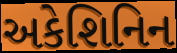
અકેશિનિન